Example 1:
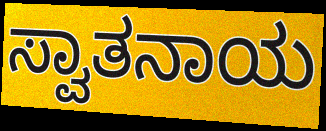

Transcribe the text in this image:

ಸ್ವಾತನಾಯ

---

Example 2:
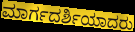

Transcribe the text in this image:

ಮಾರ್ಗದರ್ಶಿಯಾದರು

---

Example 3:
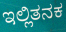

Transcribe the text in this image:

ಇಲ್ಲಿತನಕ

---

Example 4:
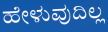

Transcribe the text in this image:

ಹೇಳುವುದಿಲ್ಲ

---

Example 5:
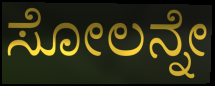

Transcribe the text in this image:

ಸೋಲನ್ನೇ